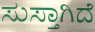
ಸುಸ್ತಾಗಿದೆ